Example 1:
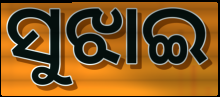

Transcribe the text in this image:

ସୁଝାଇ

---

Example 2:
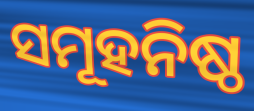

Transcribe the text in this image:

ସମୂହନିଷ୍ଠ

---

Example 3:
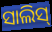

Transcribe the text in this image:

ସାଲିସ୍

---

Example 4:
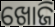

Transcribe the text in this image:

ଖୋଜି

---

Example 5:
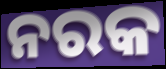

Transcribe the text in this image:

ନରକ